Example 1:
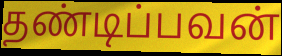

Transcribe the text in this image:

தண்டிப்பவன்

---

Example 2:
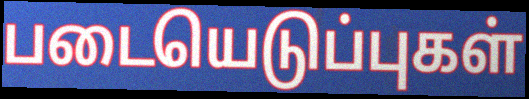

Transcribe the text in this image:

படையெடுப்புகள்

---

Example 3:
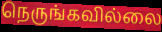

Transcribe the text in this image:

நெருங்கவில்லை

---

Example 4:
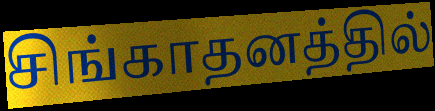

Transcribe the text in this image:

சிங்காதனத்தில்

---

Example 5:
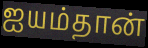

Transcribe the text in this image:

ஐயம்தான்